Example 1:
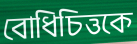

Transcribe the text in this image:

বোধিচিত্তকে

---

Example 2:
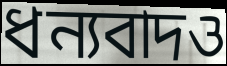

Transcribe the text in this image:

ধন্যবাদও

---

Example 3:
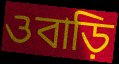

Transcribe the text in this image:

ওবাড়ি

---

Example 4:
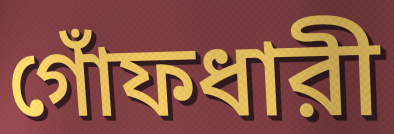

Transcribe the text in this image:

গোঁফধারী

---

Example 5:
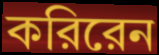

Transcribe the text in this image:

করিরেন